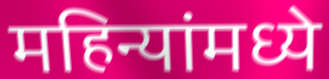
महिन्यांमध्ये